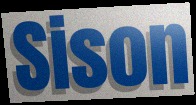
Sison